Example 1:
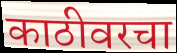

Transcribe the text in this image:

काठीवरचा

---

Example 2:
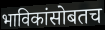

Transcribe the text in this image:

भाविकांसोबतच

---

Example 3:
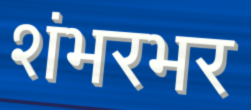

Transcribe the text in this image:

शंभरभर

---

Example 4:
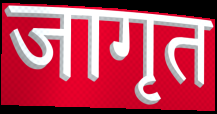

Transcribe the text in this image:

जागृत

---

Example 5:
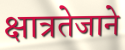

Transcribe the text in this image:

क्षात्रतेजाने